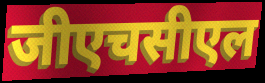
जीएचसीएल